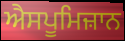
ਐਸਪੂਮਿਜ਼ਾਨ